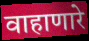
वाहाणारे